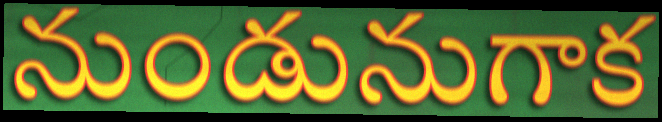
నుండునుగాక